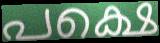
പക്ഷെ